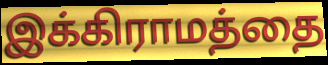
இக்கிராமத்தை